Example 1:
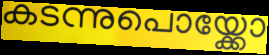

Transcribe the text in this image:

കടന്നുപൊയ്ക്കോ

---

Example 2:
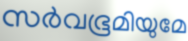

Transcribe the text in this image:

സർവഭൂമിയുമേ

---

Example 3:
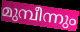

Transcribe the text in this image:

മുമ്പീന്നും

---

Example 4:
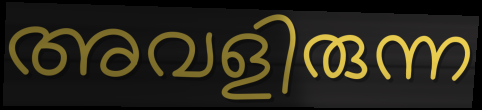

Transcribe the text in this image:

അവളിരുന്ന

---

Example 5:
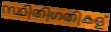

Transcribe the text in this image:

സ്ഥിതിഗതികള്